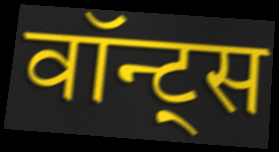
वॉन्ट्स